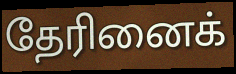
தேரினைக்